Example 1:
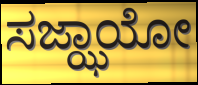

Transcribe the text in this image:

ಸಜ್ಝಾಯೋ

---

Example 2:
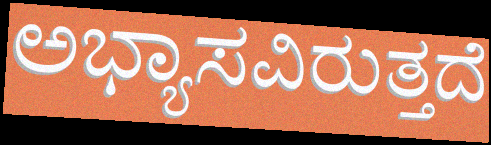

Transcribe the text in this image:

ಅಭ್ಯಾಸವಿರುತ್ತದೆ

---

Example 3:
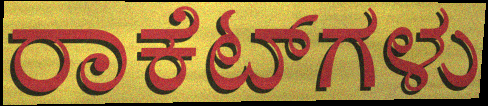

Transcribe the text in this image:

ರಾಕೆಟ್‌ಗಳು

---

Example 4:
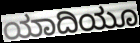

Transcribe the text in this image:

ಯಾದಿಯೂ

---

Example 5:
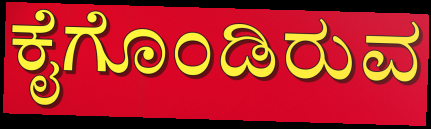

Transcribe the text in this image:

ಕೈಗೊಂಡಿರುವ